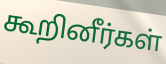
கூறினீர்கள்